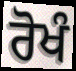
ਰੋਖੰ